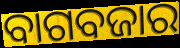
ବାଗବଜାର